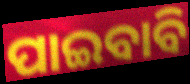
ପାଇବାବି